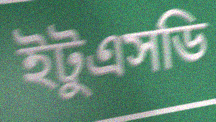
ইটুএসডি